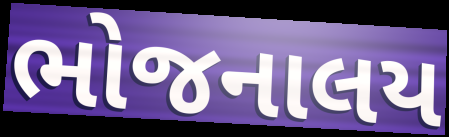
ભોજનાલય